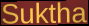
Suktha